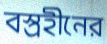
বস্ত্রহীনের